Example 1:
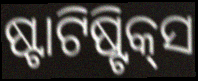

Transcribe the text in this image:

ଷ୍ଟାଟିଷ୍ଟିକ୍‍ସ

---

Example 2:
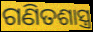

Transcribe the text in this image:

ଗଣିତଶାସ୍ତ୍ର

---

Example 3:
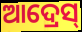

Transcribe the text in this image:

ଆଦ୍ରେସ୍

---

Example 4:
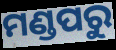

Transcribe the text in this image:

ମଣ୍ଡପରୁ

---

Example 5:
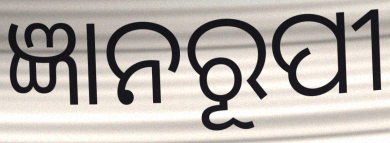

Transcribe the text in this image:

ଜ୍ଞାନରୂପୀ